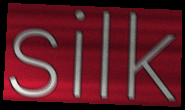
silk